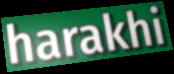
harakhi